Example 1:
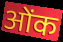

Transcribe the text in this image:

ओंक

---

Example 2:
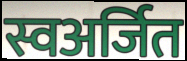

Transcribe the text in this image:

स्वअर्जित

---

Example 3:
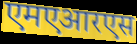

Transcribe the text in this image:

एमएआरएस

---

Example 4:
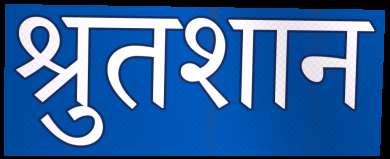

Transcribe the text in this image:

श्रुतशान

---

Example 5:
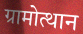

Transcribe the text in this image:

ग्रामोत्थान